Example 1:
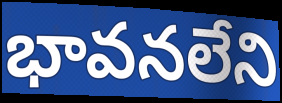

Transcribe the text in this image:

భావనలేని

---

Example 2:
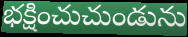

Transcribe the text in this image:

భక్షించుచుండును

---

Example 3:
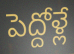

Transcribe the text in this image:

పెద్దోళ్లే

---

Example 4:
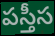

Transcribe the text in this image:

పస్తీస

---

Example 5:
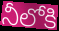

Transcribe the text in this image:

నీలోకి